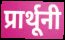
प्रार्थूनी